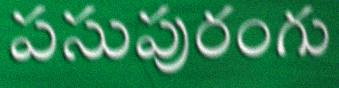
పసుపురంగు